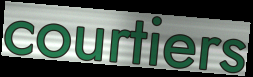
courtiers